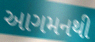
આગમનથી